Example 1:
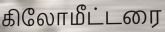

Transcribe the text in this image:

கிலோமீட்டரை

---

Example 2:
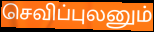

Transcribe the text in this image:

செவிப்புலனும்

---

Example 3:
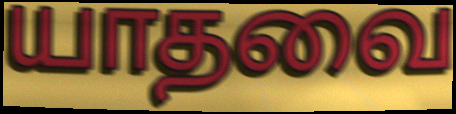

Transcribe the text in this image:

யாதவை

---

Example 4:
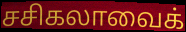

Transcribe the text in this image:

சசிகலாவைக்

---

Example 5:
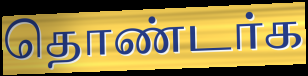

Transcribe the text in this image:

தொண்டர்க